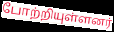
போற்றியுள்ளனர்